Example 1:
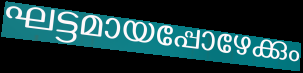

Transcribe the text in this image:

ഘട്ടമായപ്പോഴേക്കും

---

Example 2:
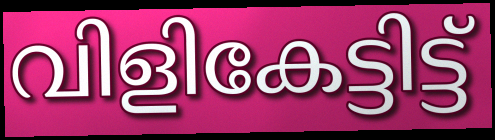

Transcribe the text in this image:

വിളികേട്ടിട്ട്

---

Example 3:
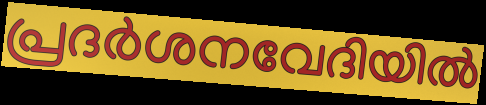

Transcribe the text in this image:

പ്രദർശനവേദിയിൽ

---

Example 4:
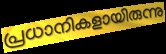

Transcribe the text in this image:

പ്രധാനികളായിരുന്നു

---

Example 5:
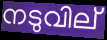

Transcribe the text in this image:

നടുവില്